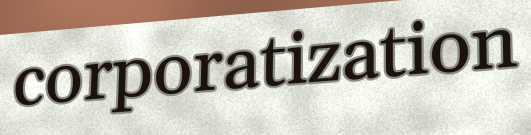
corporatization